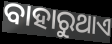
ବାହାରୁଥାଏ